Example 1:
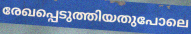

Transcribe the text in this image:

രേഖപ്പെടുത്തിയതുപോലെ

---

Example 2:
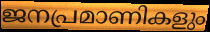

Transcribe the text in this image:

ജനപ്രമാണികളും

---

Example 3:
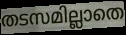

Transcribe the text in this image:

തടസമില്ലാതെ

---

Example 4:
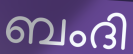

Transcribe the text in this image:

ബംദി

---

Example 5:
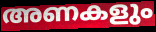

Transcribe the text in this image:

അണകളും